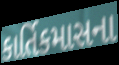
કાર્તિકમાસના